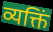
व्यक्तिं